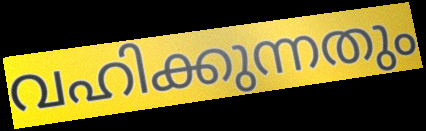
വഹിക്കുന്നതും